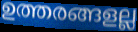
ഉത്തരങ്ങളല്ല